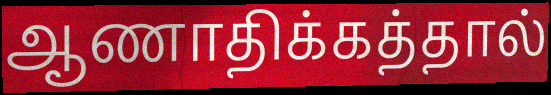
ஆணாதிக்கத்தால்